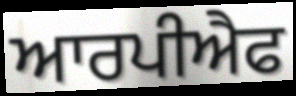
ਆਰਪੀਐਫ